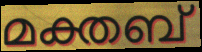
മക്തബ്